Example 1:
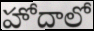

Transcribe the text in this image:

హోదాలో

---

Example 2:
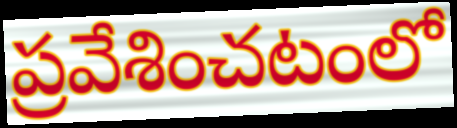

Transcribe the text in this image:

ప్రవేశించటంలో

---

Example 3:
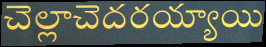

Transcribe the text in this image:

చెల్లాచెదరయ్యాయి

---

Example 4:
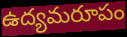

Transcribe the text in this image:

ఉద్యమరూపం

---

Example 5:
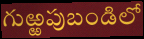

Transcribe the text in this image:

గుఱ్ఱపుబండిలో